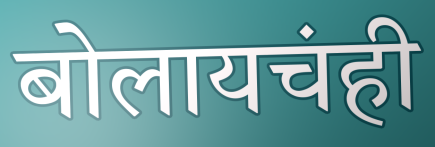
बोलायचंही